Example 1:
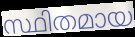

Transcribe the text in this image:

സ്ഥിതമായ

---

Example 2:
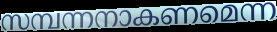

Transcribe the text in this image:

സമ്പന്നനാകണമെന്ന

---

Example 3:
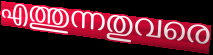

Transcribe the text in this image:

എത്തുന്നതുവരെ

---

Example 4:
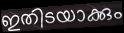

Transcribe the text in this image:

ഇതിടയാക്കും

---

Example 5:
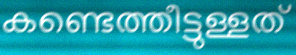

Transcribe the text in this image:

കണ്ടെത്തീട്ടുള്ളത്